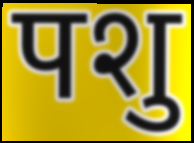
पशु